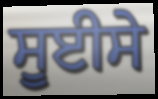
ਸੂਈਸੇ